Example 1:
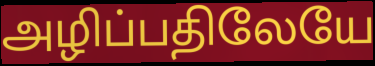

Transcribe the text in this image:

அழிப்பதிலேயே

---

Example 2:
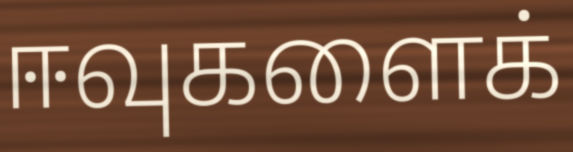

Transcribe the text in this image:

ஈவுகளைக்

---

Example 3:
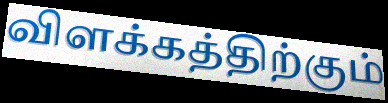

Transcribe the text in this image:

விளக்கத்திற்கும்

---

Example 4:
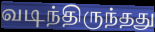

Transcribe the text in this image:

வடிந்திருந்தது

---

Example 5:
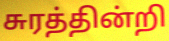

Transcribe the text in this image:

சுரத்தின்றி